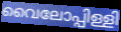
വൈലോപ്പിള്ളി